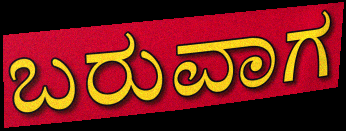
ಬರುವಾಗ